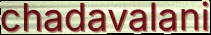
chadavalani